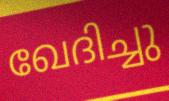
ഖേദിച്ചു